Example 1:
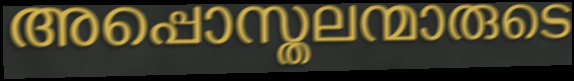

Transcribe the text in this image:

അപ്പൊസ്തലന്മാരുടെ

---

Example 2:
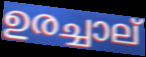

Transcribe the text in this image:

ഉരച്ചാല്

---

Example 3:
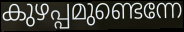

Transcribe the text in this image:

കുഴപ്പമുണ്ടെന്നേ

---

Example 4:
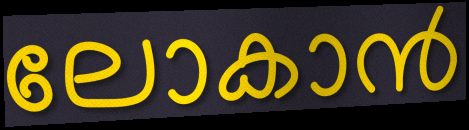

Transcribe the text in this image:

ലോകാൻ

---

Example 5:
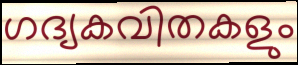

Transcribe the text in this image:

ഗദ്യകവിതകളും